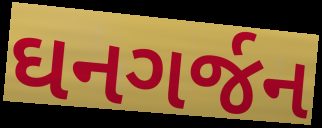
ઘનગર્જન